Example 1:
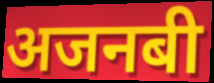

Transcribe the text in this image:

अजनबी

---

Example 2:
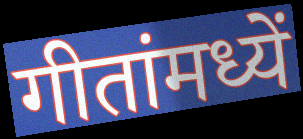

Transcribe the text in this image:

गीतांमध्यें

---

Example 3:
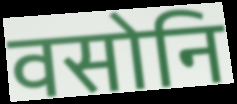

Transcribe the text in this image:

वसोनि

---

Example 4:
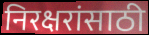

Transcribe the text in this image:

निरक्षरांसाठी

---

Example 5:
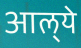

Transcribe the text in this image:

आल्ये